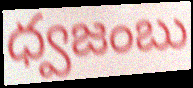
ధ్వజంబు